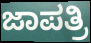
ಜಾಪತ್ರಿ